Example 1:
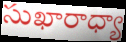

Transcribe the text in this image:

సుఖారాధ్యా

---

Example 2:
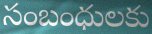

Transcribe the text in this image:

సంబంధులకు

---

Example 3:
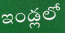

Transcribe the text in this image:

ఇండ్లలో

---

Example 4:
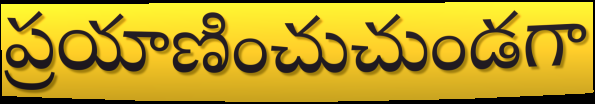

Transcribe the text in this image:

ప్రయాణించుచుండగా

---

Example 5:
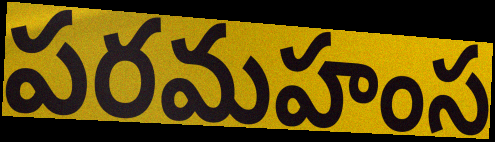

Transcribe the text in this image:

పరమహంస